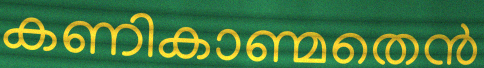
കണികാണ്മതെൻ